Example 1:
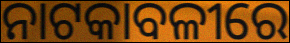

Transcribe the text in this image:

ନାଟକାବଳୀରେ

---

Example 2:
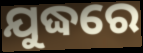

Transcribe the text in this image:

ଯୁଦ୍ଧରେ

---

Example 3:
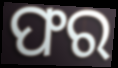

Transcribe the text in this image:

ଫର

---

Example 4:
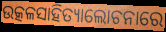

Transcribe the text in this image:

ଉତ୍କଳସାହିତ୍ୟାଲୋଚନାରେ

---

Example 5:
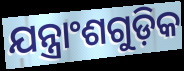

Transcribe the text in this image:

ଯନ୍ତ୍ରାଂଶଗୁଡ଼ିକ